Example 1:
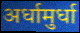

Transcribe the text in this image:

अर्धामुर्धा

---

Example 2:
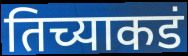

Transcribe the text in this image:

तिच्याकडं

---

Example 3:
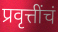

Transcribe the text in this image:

प्रवृत्तींचं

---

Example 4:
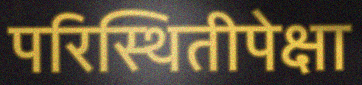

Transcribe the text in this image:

परिस्थितीपेक्षा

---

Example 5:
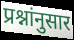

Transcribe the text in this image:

प्रश्नांनुसार